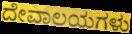
ದೇವಾಲಯಗಳು